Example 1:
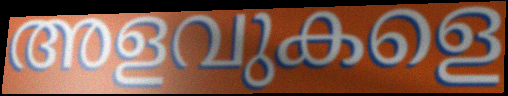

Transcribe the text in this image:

അളവുകളെ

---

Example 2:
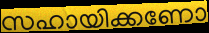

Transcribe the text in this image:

സഹായിക്കണോ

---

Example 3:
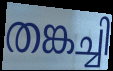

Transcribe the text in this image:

തങ്കച്ചി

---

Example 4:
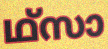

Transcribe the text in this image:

ഥ്സാ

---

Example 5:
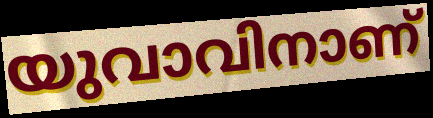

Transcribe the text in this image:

യുവാവിനാണ്